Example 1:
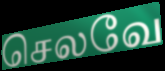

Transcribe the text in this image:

செலவே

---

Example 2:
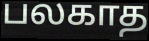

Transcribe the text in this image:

பலகாத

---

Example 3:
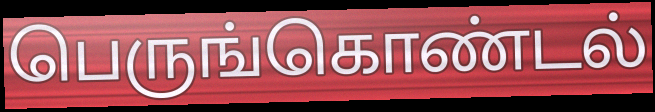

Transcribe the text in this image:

பெருங்கொண்டல்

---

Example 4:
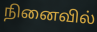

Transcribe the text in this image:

நினைவில்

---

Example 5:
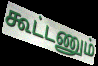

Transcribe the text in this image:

கூட்டணும்